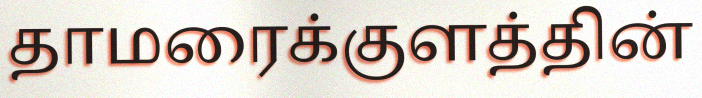
தாமரைக்குளத்தின்